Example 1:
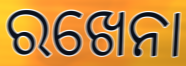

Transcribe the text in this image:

ରଖେନା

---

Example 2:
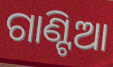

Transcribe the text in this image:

ଗାଣ୍ଟିଆ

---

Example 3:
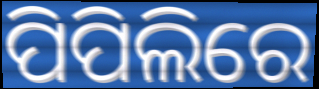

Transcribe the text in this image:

ପିପିଲିରେ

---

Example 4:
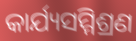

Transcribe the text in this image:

କାର୍ଯ୍ୟସମ୍ମିଶ୍ରଣ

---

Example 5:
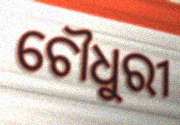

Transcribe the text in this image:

ଚୌଧୁରୀ